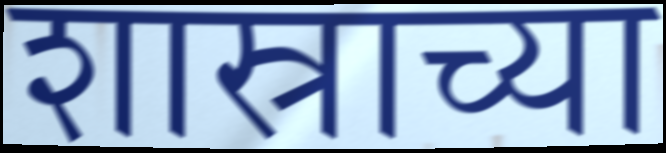
शास्राच्या